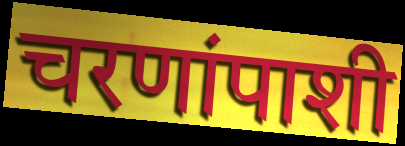
चरणांपाशी